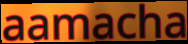
aamacha